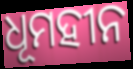
ଧୂମହୀନ